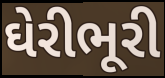
ઘેરીભૂરી